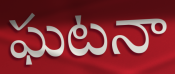
ఘటనా